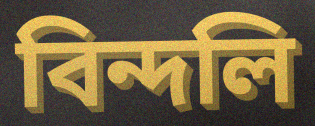
বিন্দলি